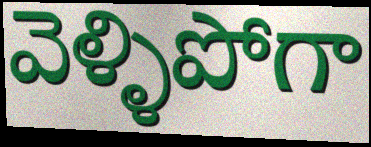
వెళ్ళిపోగా